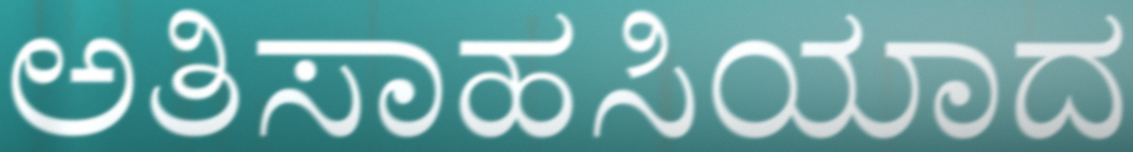
ಅತಿಸಾಹಸಿಯಾದ